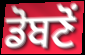
ਡੋਬਣੋਂ